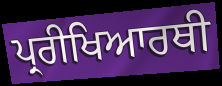
ਪ੍ਰਰੀਖਿਆਰਥੀ